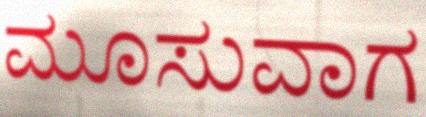
ಮೂಸುವಾಗ